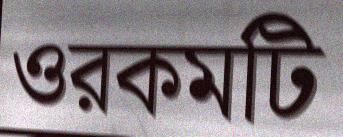
ওরকমটি